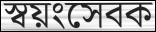
স্বয়ংসেবক